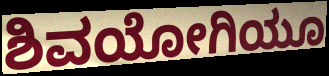
ಶಿವಯೋಗಿಯೂ